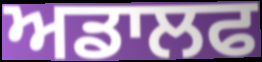
ਅਡਾਲਫ